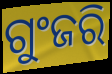
ଗୁଂଜରି